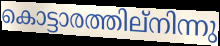
കൊട്ടാരത്തില്നിന്നു